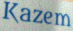
Kazem